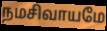
நமசிவாயமே